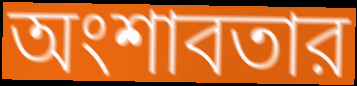
অংশাবতার